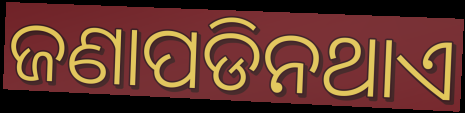
ଜଣାପଡିନଥାଏ